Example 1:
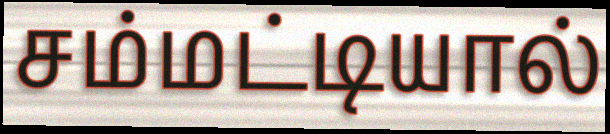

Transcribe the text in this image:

சம்மட்டியால்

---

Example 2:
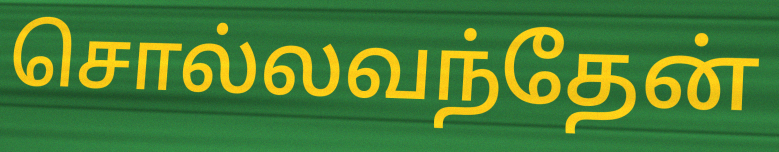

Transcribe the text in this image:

சொல்லவந்தேன்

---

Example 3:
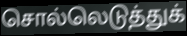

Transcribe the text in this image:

சொல்லெடுத்துக்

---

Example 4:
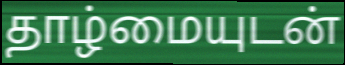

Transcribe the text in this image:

தாழ்மையுடன்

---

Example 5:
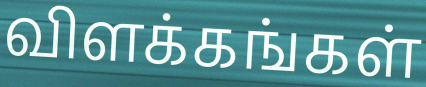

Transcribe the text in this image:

விளக்கங்கள்